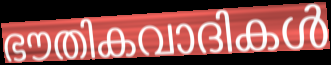
ഭൗതികവാദികൾ